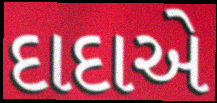
દાદાએ